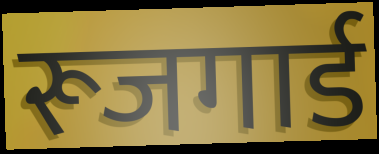
रूजगार्ड